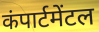
कंपार्टमेंटल